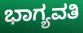
ಭಾಗ್ಯವತಿ